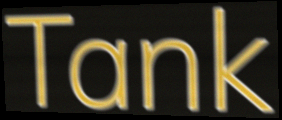
Tank